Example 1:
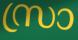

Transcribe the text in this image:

സ്രാ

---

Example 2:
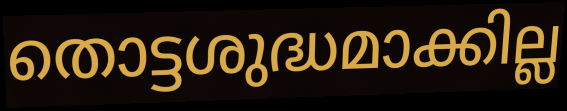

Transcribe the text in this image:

തൊട്ടശുദ്ധമാക്കില്ല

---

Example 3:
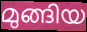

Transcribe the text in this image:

മുങ്ങിയ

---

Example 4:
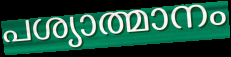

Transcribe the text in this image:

പശ്യാത്മാനം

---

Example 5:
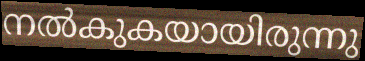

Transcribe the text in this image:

നൽകുകയായിരുന്നു